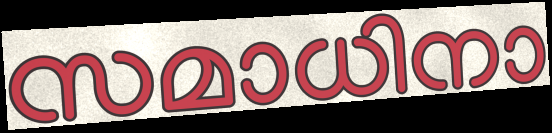
സമാധിനാ